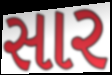
સાર